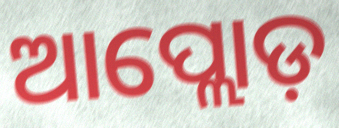
ଆପ୍ଲୋଡ଼